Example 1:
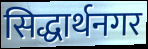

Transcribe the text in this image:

सिद्धार्थनगर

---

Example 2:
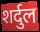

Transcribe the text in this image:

शर्दुल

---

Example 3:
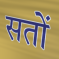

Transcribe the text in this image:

सतों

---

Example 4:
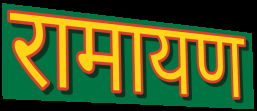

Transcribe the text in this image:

रामायण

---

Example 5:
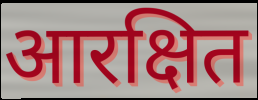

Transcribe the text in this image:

आरक्षित